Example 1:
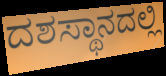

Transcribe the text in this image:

ದಶಸ್ಥಾನದಲ್ಲಿ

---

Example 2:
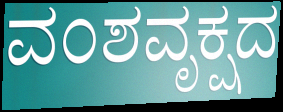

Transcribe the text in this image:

ವಂಶವೃಕ್ಷದ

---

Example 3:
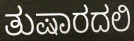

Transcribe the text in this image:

ತುಷಾರದಲಿ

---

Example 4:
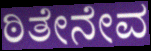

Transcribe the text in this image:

ಠಿತೇನೇವ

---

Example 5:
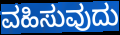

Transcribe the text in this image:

ವಹಿಸುವುದು